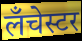
लँचेस्टर